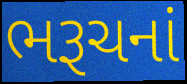
ભરૂચનાં